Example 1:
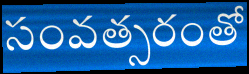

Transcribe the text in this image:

సంవత్సరంతో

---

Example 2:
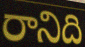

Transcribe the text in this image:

రానిది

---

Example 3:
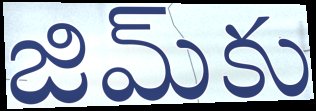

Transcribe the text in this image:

జిమ్‌కు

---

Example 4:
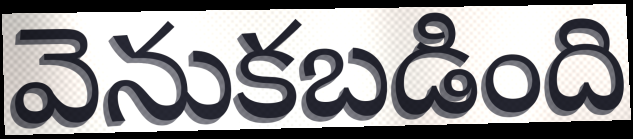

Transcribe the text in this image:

వెనుకబడింది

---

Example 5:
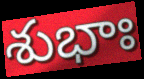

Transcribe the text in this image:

శుభాః